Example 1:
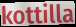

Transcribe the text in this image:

kottilla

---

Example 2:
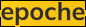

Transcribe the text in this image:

epoche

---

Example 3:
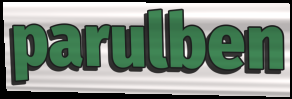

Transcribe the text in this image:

parulben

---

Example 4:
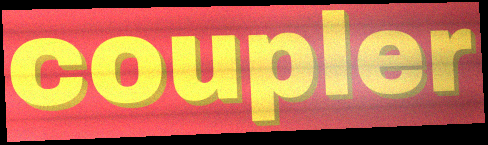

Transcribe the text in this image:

coupler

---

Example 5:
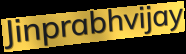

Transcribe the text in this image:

Jinprabhvijay